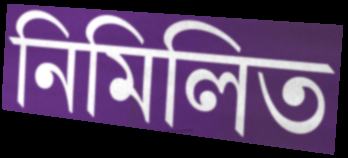
নিমিলিত